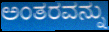
ಅಂತರವನ್ನು